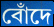
বোঁদে